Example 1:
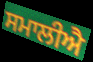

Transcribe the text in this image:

ਸਮਾਲੀਐ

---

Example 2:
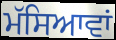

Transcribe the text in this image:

ਮੱਸਿਆਵਾਂ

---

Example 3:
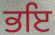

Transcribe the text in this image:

ਭਇ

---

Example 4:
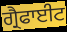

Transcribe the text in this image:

ਗ੍ਰੈਫਾਈਟ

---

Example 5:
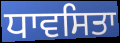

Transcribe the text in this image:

ਧਾਵਸਿਤਾ